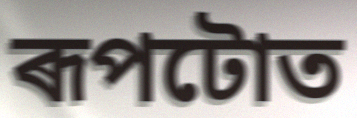
ৰূপটোত